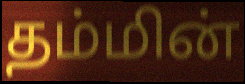
தம்மின்